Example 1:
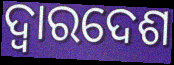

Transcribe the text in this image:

ଦ୍ଵାରଦେଶ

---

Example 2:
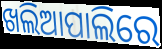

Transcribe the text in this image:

ଖଲିଆପାଲିରେ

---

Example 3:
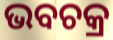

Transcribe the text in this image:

ଭବଚକ୍ର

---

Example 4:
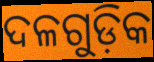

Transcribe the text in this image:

ଦଳଗୁଡ଼ିକ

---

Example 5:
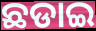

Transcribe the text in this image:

ଛଡାଇ